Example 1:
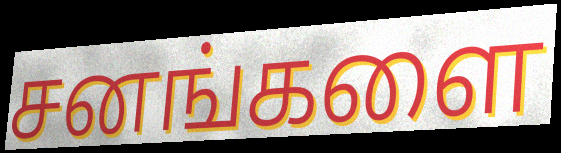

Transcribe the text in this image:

சனங்களை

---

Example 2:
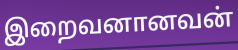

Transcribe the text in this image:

இறைவனானவன்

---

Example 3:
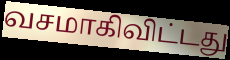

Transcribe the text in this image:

வசமாகிவிட்டது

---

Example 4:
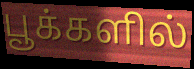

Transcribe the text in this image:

பூக்களில்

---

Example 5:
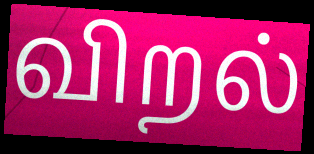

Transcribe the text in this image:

விறல்